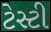
ટેસ્ટી